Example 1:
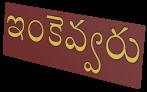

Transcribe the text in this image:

ఇంకెవ్వరు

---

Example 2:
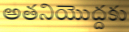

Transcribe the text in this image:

అతనియొద్దకు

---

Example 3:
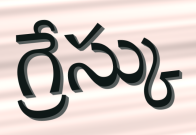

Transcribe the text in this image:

గ్రేస్కు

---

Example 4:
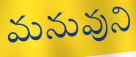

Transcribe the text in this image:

మనువుని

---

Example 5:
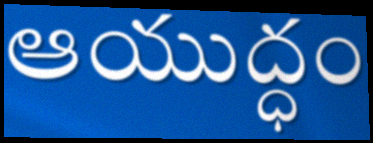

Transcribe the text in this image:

ఆయుద్ధం